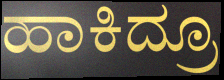
ಹಾಕಿದ್ರೂ